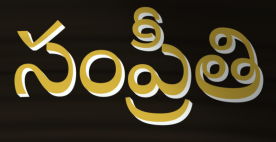
సంప్రీతి